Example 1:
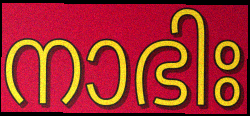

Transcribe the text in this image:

നാഭിഃ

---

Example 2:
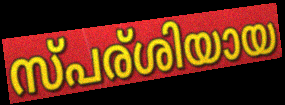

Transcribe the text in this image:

സ്പര്ശിയായ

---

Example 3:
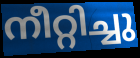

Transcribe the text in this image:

നീറ്റിച്ചു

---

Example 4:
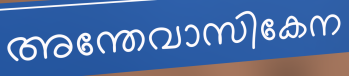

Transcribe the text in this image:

അന്തേവാസികേന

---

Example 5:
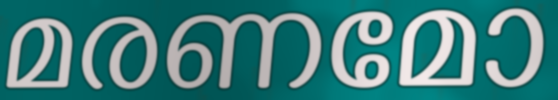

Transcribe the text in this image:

മരണമോ